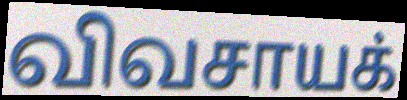
விவசாயக்